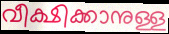
വീക്ഷിക്കാനുള്ള